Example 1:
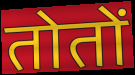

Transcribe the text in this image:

तोतों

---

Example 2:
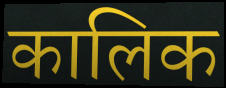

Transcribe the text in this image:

कालिक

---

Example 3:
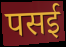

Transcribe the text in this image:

पसई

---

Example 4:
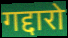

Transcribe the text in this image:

गद्दारो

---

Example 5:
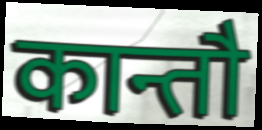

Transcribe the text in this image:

कान्तौ